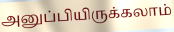
அனுப்பியிருக்கலாம்